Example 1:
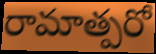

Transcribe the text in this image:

రామాత్పరో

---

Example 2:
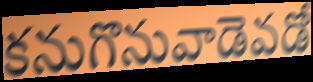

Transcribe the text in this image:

కనుగొనువాడెవడో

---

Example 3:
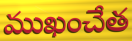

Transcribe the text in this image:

ముఖంచేత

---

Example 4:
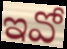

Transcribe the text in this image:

ఇవో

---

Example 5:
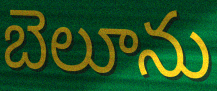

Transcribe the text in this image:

బెలూను